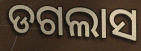
ଡଗଲାସ